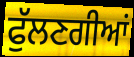
ਫੁੱਲਣਗੀਆਂ